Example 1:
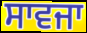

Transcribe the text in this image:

ਸਾਵਜਾ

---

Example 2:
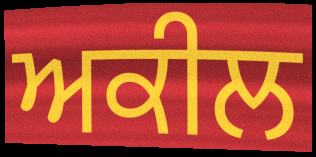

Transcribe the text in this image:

ਅਕੀਲ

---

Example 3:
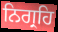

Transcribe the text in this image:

ਨਿਗ੍ਰਹਿ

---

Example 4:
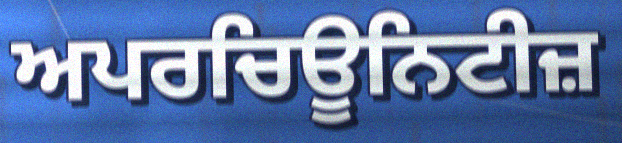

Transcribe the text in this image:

ਅਪਰਚਿਊਨਿਟੀਜ਼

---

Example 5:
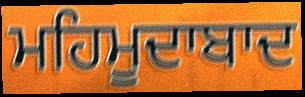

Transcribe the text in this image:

ਮਹਿਮੂਦਾਬਾਦ